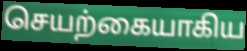
செயற்கையாகிய